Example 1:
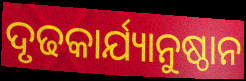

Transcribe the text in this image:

ଦୃଢକାର୍ଯ୍ୟାନୁଷ୍ଠାନ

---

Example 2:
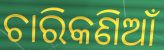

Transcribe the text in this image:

ଚାରିକଣିଆଁ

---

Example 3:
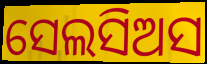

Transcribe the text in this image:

ସେଲସିଅସ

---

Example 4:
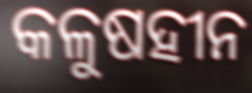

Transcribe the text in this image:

କଳୁଷହୀନ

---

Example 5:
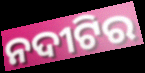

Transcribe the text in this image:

ନଦୀଟିର